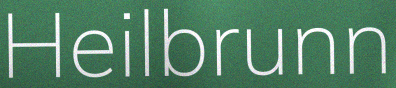
Heilbrunn